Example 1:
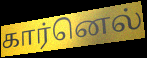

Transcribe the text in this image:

கார்னெல்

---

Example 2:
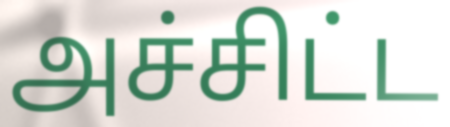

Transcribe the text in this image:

அச்சிட்ட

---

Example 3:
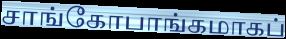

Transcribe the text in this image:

சாங்கோபாங்கமாகப்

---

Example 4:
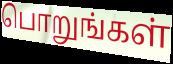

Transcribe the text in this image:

பொறுங்கள்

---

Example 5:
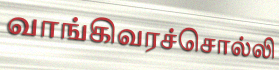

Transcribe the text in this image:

வாங்கிவரச்சொல்லி